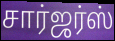
சார்ஜர்ஸ்